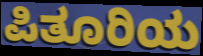
ಪಿತೂರಿಯ